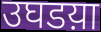
उघडय़ा